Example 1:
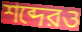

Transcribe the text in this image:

শব্দেরও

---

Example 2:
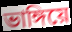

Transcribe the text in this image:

ভাঙ্গিয়ে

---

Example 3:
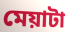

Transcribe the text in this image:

মেয়াটা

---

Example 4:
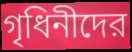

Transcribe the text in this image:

গৃধিনীদের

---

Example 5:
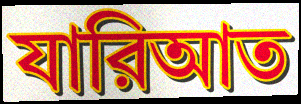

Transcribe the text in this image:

যারিআত